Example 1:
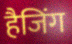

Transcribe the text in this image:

हैजिंग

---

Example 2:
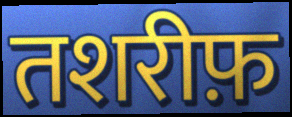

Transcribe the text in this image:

तशरीफ़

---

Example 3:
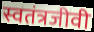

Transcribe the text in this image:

स्वतंत्रजीवी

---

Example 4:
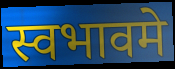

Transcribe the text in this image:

स्वभावमे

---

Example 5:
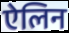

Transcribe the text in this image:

ऐलिन